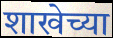
शाखेच्या